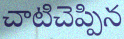
చాటిచెప్పిన